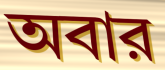
অবার